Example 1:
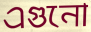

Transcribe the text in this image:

এগুনো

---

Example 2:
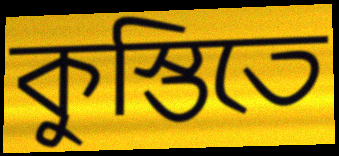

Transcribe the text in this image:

কুস্তিতে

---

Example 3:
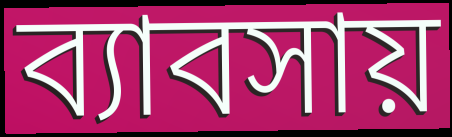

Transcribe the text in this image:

ব্যাবসায়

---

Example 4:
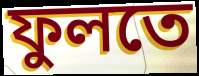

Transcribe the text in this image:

ফুলতে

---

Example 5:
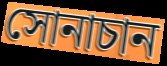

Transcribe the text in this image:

সোনাচান